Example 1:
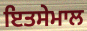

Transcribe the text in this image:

ਇਤਸੇਮਾਲ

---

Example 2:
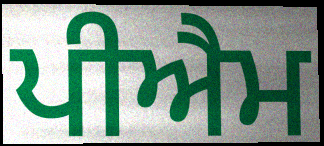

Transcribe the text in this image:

ਪੀਐਮ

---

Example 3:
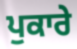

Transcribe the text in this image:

ਪੁਕਾਰੇ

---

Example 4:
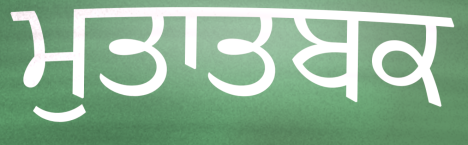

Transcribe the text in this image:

ਮੁਤਾਤਬਕ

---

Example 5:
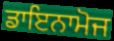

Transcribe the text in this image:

ਡਾਇਨਾਮੋਜ